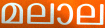
മലാല